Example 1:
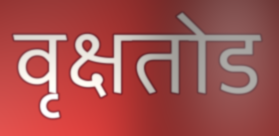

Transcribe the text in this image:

वृक्षतोड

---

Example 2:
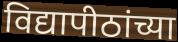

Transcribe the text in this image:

विद्यापीठांच्या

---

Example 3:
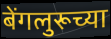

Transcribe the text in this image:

बेंगलुरूच्या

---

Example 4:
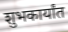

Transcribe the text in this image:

शुभकार्यांत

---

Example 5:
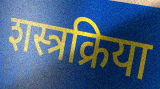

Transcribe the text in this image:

शस्त्रक्रिया